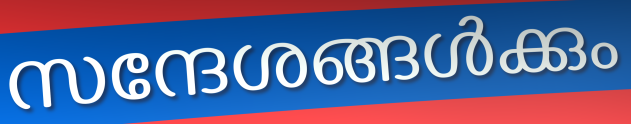
സന്ദേശങ്ങൾക്കും